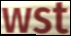
wst